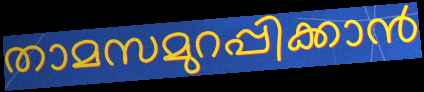
താമസമുറപ്പിക്കാൻ